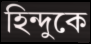
হিন্দুকে